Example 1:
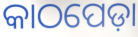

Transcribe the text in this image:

କାଠପେଡ଼ା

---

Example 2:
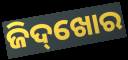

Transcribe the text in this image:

ଜିଦ୍‌ଖୋର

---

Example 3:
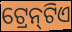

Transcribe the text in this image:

ଟ୍ରେନ୍‌ଟିଏ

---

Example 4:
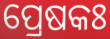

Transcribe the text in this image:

ପ୍ରେଷକଃ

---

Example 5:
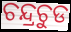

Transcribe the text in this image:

ଚନ୍ଦ୍ରଚୁଡ